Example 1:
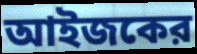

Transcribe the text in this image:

আইজকের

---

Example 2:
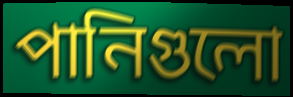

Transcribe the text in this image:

পানিগুলো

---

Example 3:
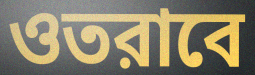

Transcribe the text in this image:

ওতরাবে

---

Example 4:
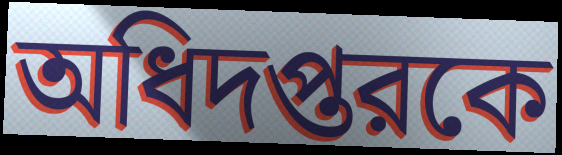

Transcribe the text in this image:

অধিদপ্তরকে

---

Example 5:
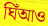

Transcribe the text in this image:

ঘিঁআও